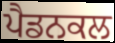
ਪੈਡਨਕਲ